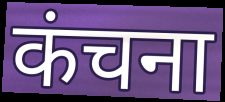
कंचना